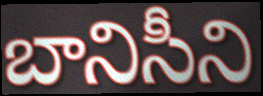
బానిసీని